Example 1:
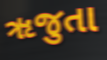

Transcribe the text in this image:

ૠજુતા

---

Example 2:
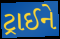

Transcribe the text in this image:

ટ્રાઈને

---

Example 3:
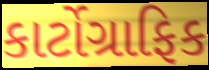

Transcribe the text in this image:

કાર્ટોગ્રાફિક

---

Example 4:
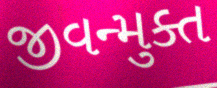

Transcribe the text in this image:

જીવન્મુક્ત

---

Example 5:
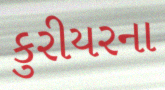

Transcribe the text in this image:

કુરીયરના